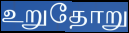
உறுதோறு